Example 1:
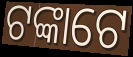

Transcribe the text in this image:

ଟଙ୍କାଟେ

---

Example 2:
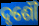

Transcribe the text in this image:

ଦୃଶୌ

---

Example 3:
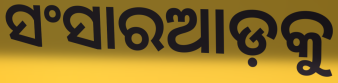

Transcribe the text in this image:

ସଂସାରଆଡ଼କୁ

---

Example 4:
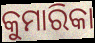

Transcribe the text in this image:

କୁମାରିକା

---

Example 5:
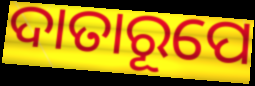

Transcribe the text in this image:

ଦାତାରୂପେ